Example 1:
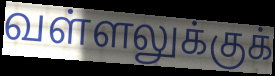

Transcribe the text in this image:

வள்ளலுக்குக்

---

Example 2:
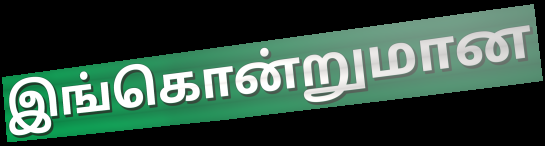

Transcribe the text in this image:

இங்கொன்றுமான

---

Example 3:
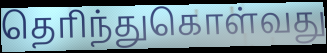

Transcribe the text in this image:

தெரிந்துகொள்வது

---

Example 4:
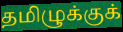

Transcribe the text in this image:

தமிழுக்குக்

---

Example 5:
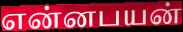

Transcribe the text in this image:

என்னபயன்